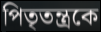
পিতৃতন্ত্রকে